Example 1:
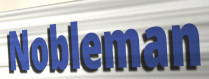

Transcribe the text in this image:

Nobleman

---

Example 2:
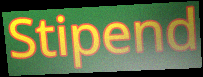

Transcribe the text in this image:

Stipend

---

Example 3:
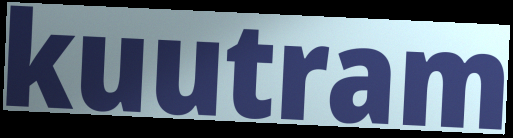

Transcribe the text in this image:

kuutram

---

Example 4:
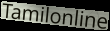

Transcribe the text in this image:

Tamilonline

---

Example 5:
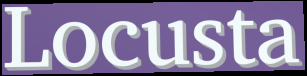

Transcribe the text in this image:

Locusta